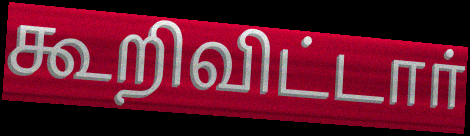
கூறிவிட்டார்